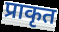
प्राकृत